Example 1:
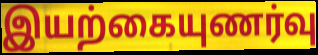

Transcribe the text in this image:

இயற்கையுணர்வு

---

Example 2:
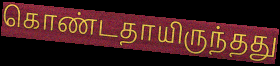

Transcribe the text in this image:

கொண்டதாயிருந்தது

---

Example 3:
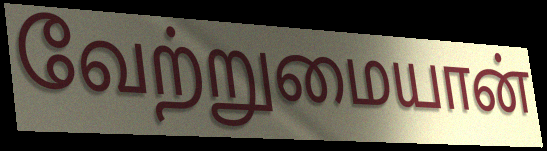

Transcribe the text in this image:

வேற்றுமையான்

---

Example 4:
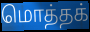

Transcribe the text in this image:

மொத்தக்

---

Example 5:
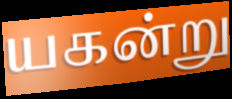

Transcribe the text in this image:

யகன்று